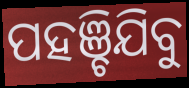
ପହଞ୍ଚିଯିବୁ